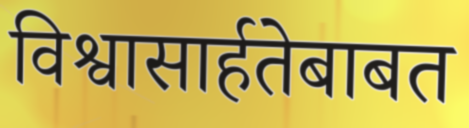
विश्वासार्हतेबाबत